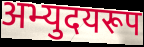
अभ्युदयरूप